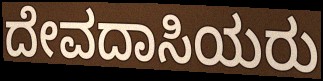
ದೇವದಾಸಿಯರು